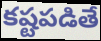
కష్టపడితే